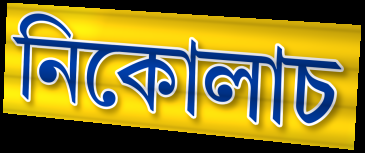
নিকোলাচ